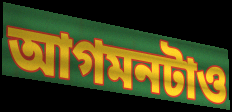
আগমনটাও